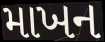
માખન